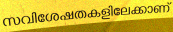
സവിശേഷതകളിലേക്കാണ്